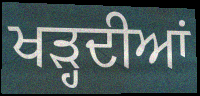
ਖੜ੍ਹਦੀਆਂ